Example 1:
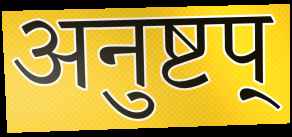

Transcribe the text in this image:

अनुष्टप्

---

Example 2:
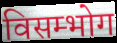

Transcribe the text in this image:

विसम्भोग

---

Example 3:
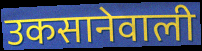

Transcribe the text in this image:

उकसानेवाली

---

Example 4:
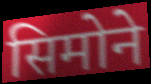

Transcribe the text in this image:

सिमोने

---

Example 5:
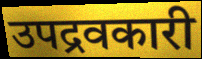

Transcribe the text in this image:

उपद्रवकारी